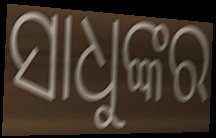
ସାଧୁଙ୍କର